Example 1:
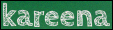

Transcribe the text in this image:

kareena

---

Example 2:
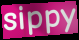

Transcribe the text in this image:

sippy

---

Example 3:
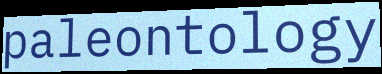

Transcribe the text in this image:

paleontology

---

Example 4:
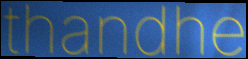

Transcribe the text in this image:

thandhe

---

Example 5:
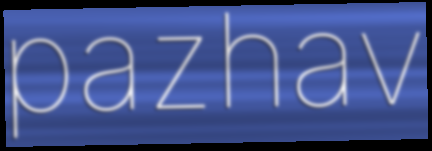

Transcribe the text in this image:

pazhav